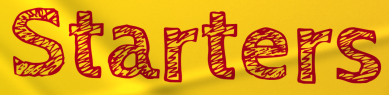
Starters